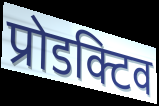
प्रोडक्टिव